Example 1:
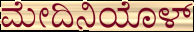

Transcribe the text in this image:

ಮೇದಿನಿಯೊಳ್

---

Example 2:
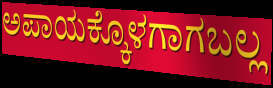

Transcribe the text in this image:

ಅಪಾಯಕ್ಕೊಳಗಾಗಬಲ್ಲ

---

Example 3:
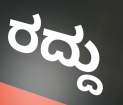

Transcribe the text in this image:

ರದ್ದು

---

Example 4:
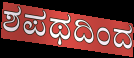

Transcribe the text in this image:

ಶಪಥದಿಂದ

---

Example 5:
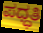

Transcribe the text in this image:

ಪಧ್ಧತಿ